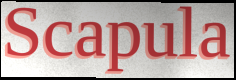
Scapula